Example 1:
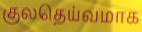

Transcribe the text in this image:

குலதெய்வமாக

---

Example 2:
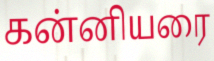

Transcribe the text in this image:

கன்னியரை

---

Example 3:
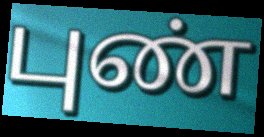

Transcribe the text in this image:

புண்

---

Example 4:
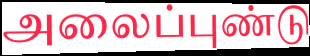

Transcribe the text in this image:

அலைப்புண்டு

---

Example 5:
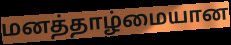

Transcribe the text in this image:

மனத்தாழ்மையான